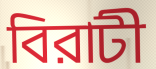
বিরাটী